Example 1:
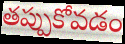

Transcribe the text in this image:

తప్పుకోవడం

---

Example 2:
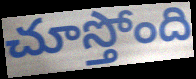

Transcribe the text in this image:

చూస్తోంది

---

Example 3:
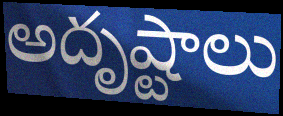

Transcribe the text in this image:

అదృష్టాలు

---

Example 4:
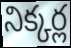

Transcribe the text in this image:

నిక్కర్ల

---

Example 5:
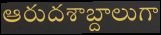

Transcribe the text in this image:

ఆరుదశాబ్దాలుగా